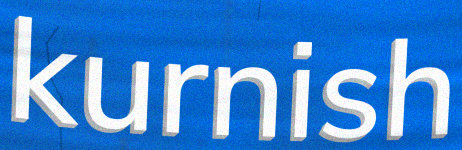
kurnish